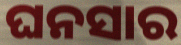
ଘନସାର